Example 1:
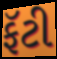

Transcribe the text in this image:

ફૅટી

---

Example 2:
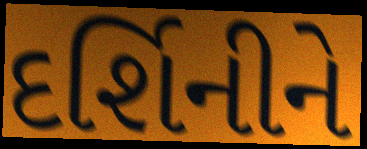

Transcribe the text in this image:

દર્શિનીને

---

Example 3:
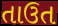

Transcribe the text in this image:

તાઉત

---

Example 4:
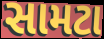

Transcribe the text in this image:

સામટા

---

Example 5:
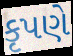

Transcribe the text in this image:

કૃપણે